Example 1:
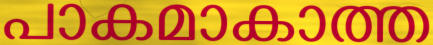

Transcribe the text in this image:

പാകമാകാത്ത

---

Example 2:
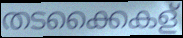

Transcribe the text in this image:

തടക്കൈകള്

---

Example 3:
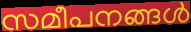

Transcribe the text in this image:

സമീപനങ്ങൾ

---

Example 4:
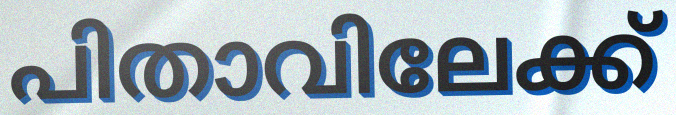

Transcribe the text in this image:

പിതാവിലേക്ക്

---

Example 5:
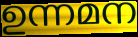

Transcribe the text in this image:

ഉന്നമന